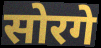
सोरगे